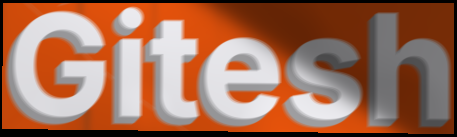
Gitesh